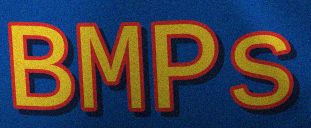
BMPs